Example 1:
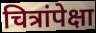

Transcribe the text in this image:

चित्रांपेक्षा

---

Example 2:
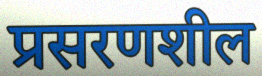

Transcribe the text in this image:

प्रसरणशील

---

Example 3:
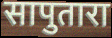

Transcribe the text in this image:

सापुतारा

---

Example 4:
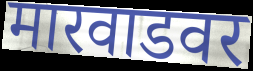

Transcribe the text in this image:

मारवाडवर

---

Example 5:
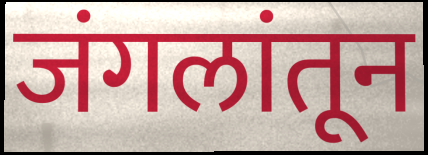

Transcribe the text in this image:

जंगलांतून